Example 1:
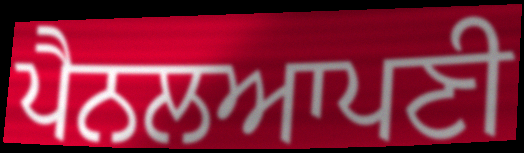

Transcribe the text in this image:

ਪੈਨਲਆਪਣੀ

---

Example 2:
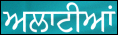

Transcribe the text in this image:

ਅਲਾਟੀਆਂ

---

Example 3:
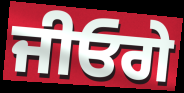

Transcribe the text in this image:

ਜੀਓਗੇ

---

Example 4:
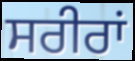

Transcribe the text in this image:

ਸਰੀਰਾਂ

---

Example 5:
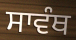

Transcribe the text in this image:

ਸਾਵੰਥ